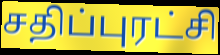
சதிப்புரட்சி